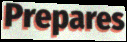
Prepares